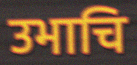
उभाचि